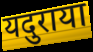
यदुराया